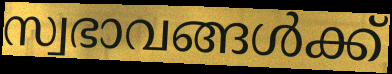
സ്വഭാവങ്ങൾക്ക്